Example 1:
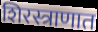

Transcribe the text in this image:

शिरस्त्राणात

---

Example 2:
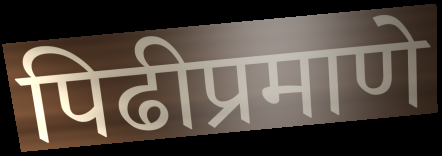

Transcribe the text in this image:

पिढीप्रमाणे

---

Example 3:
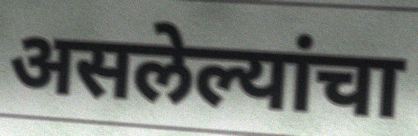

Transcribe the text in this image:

असलेल्यांचा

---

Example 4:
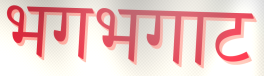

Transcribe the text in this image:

भगभगाट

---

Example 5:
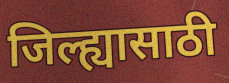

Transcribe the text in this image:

जिल्ह्यासाठी